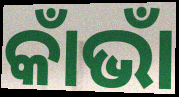
କାଁଭାଁ